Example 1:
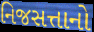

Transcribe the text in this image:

નિજસત્તાનો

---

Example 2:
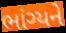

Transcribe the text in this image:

ભાંગ્યને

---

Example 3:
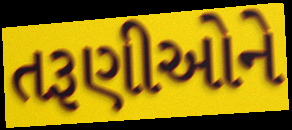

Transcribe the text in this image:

તરૂણીઓને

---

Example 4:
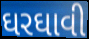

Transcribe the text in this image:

ઘરઘાવી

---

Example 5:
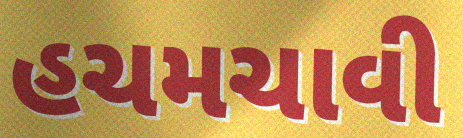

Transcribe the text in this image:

હચમચાવી